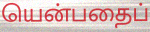
யென்பதைப்